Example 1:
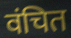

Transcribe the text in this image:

वंचित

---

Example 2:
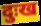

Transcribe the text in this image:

दुःख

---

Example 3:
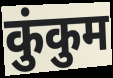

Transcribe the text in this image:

कुंकुम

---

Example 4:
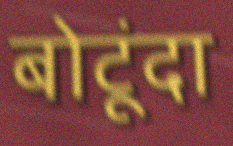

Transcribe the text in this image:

बोटूंदा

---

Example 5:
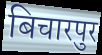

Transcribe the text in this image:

बिचारपुर